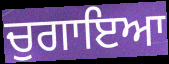
ਚੁਗਾਇਆ